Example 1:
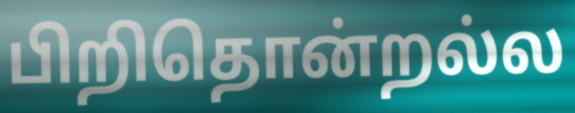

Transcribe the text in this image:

பிறிதொன்றல்ல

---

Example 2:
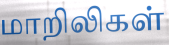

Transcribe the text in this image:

மாறிலிகள்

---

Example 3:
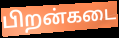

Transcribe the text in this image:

பிறன்கடை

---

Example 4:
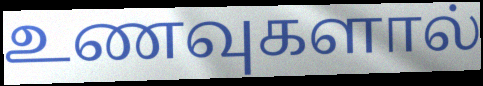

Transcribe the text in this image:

உணவுகளால்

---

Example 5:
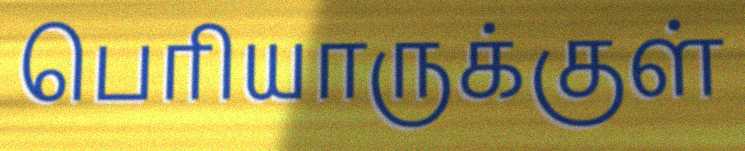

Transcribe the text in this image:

பெரியாருக்குள்